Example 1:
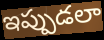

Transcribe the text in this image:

ఇప్పుడలా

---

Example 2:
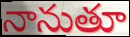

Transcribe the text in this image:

నానుతూ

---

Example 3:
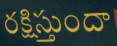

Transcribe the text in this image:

రక్షిస్తుందా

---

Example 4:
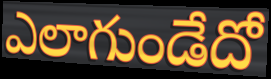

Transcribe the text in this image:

ఎలాగుండేదో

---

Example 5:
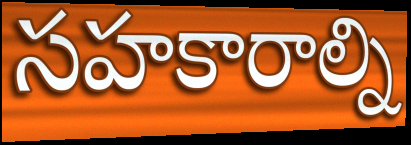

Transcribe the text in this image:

సహకారాల్ని